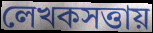
লেখকসত্তায়